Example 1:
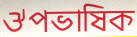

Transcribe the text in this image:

ঔপভাষিক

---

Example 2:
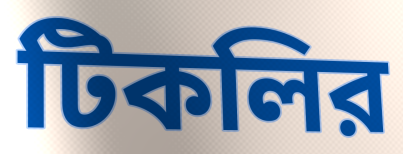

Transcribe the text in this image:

টিকলির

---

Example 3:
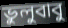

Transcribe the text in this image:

ভুলুবাবু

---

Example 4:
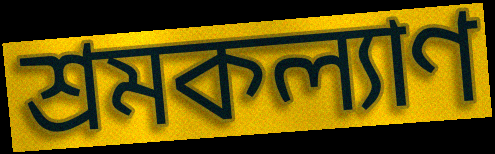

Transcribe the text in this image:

শ্রমকল্যাণ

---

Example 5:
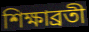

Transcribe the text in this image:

শিক্ষাব্রতী